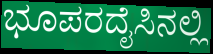
ಭೂಪರದೈಸಿನಲ್ಲಿ